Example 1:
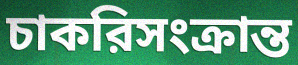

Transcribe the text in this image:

চাকরিসংক্রান্ত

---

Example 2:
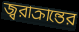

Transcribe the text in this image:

জ্বরাক্রান্তের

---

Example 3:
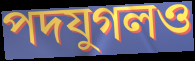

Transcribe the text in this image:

পদযুগলও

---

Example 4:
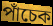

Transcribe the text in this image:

পাঁচেক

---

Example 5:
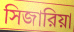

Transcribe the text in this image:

সিজারিয়া